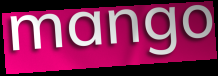
mango